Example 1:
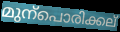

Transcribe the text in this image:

മുന്പൊരിക്കല്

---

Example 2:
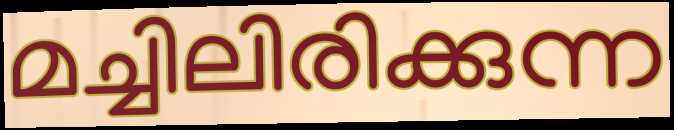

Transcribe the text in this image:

മച്ചിലിരിക്കുന്ന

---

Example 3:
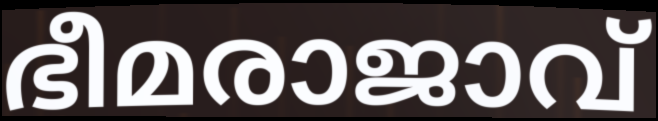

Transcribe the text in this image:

ഭീമരാജാവ്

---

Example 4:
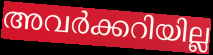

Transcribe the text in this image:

അവർക്കറിയില്ല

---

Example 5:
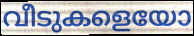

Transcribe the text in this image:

വീടുകളെയോ